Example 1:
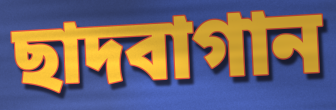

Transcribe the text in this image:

ছাদবাগান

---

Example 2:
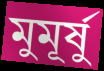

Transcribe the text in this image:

মুমূর্ষু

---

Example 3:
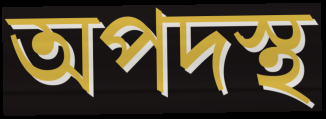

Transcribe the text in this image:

অপদস্থ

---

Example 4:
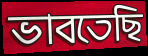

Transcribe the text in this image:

ভাবতেছি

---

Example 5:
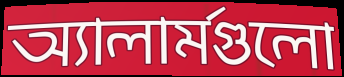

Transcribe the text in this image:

অ্যালার্মগুলো